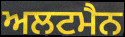
ਅਲਟਮੈਨ